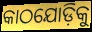
କାଠଯୋଡ଼ିକୁ